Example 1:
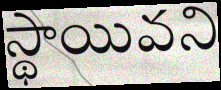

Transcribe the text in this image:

స్థాయివని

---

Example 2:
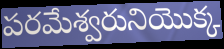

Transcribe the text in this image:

పరమేశ్వరునియొక్క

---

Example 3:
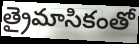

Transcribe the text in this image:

త్రైమాసికంతో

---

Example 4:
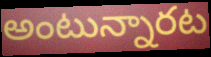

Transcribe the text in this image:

అంటున్నారట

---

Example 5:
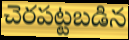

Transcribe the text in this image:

చెరపట్టబడిన